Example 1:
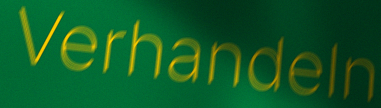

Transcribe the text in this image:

Verhandeln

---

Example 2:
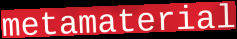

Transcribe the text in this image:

metamaterial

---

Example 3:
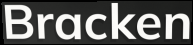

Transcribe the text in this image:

Bracken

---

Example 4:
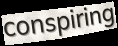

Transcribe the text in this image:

conspiring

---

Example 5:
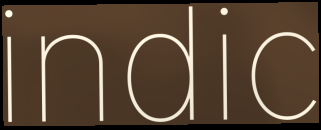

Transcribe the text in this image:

indic